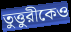
তুত্তুরীকেও